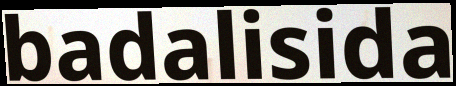
badalisida